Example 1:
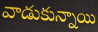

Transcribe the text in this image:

వాడుకున్నాయి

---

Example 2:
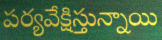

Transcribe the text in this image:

పర్యవేక్షిస్తున్నాయి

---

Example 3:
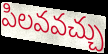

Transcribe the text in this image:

పిలవవచ్చు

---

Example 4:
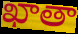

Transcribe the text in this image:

ఖాతా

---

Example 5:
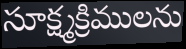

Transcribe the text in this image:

సూక్ష్మక్రిములను